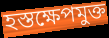
হস্তক্ষেপমুক্ত